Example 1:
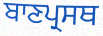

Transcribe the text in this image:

ਬਾਣਪ੍ਰਸਥ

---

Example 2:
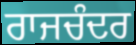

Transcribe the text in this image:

ਰਾਜਚੰਦਰ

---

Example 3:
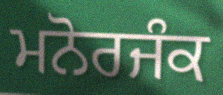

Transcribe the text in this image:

ਮਨੋਰਜੰਕ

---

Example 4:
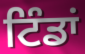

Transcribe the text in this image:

ਟਿੰਡਾਂ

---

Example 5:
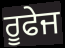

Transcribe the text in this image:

ਰੂਫੇਜ